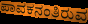
ಪಾವಕನಂತಿರುವ